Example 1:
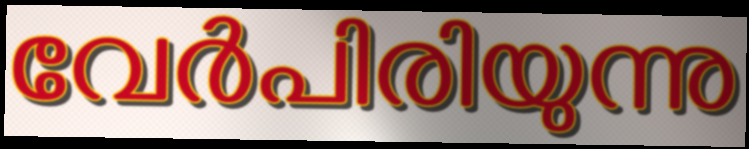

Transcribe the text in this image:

വേർപിരിയുന്നു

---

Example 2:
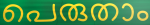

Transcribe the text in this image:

പെരുതാം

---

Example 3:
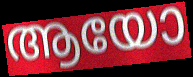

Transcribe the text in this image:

ആയോ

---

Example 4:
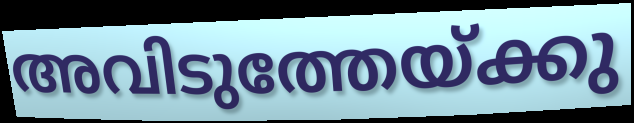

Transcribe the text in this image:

അവിടുത്തേയ്ക്കു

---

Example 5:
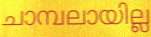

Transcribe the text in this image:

ചാമ്പലായില്ല